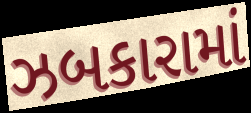
ઝબકારામાં